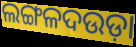
ଲଙ୍ଗଳଦଉଡ଼ା